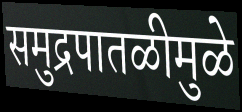
समुद्रपातळीमुळे